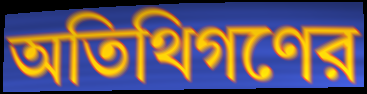
অতিথিগণের